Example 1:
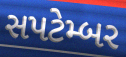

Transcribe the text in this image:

સપટેમ્બર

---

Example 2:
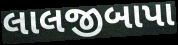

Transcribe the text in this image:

લાલજીબાપા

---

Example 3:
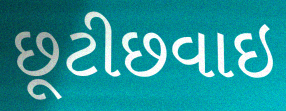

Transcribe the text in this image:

છૂટીછવાઇ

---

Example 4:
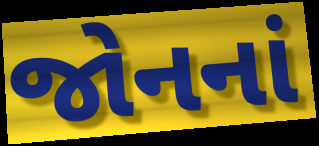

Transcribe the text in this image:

જોનનાં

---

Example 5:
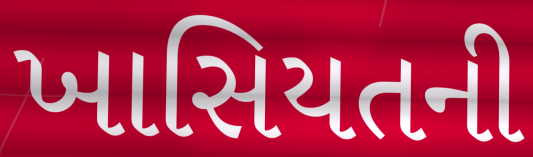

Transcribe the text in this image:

ખાસિયતની